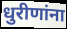
धुरीणांना